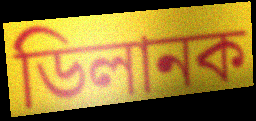
ডিলানক